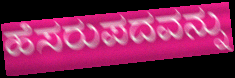
ಹೆಸರುಪದವನ್ನು